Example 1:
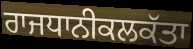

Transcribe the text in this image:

ਰਾਜਧਾਨੀਕਲਕੱਤਾ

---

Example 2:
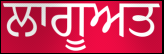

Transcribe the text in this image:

ਲਾਗੂਅਤ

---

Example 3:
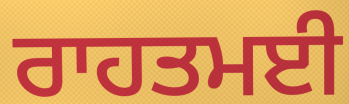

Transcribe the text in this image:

ਰਾਹਤਮਈ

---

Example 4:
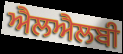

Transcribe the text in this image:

ਐਲਐਲਬੀ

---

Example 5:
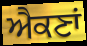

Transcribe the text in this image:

ਐਕਣਾਂ